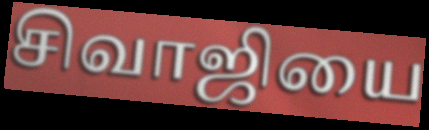
சிவாஜியை